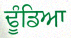
ਢੂੰਡਿਆ